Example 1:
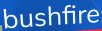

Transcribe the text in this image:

bushfire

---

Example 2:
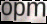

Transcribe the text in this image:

opm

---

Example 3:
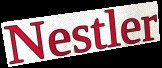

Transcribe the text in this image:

Nestler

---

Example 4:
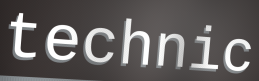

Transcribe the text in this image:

technic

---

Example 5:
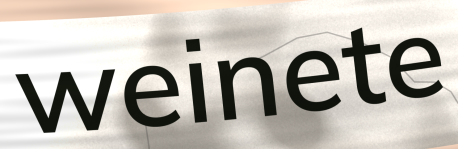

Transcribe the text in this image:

weinete